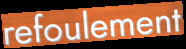
refoulement